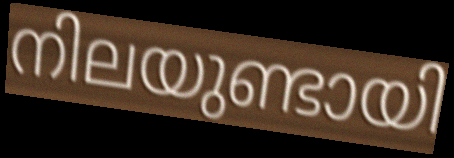
നിലയുണ്ടായി